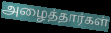
அழைத்தார்கள்